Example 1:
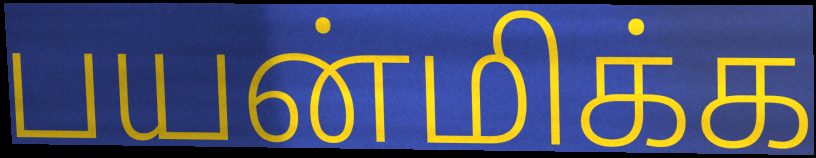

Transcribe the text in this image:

பயன்மிக்க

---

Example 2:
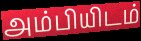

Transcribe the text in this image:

அம்பியிடம்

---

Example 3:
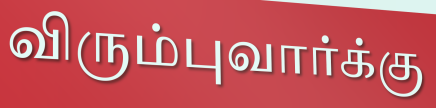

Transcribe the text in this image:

விரும்புவார்க்கு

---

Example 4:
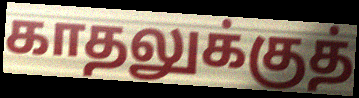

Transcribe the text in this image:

காதலுக்குத்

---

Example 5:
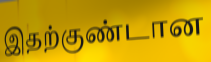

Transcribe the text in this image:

இதற்குண்டான